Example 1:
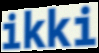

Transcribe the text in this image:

ikki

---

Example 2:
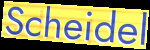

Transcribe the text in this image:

Scheidel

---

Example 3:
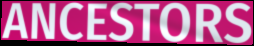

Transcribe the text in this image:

ANCESTORS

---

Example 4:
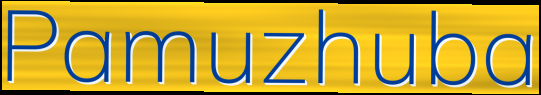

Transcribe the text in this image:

Pamuzhuba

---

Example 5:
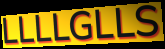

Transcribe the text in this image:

LLLLGLLS